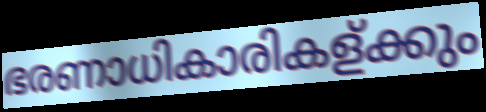
ഭരണാധികാരികള്ക്കും